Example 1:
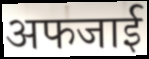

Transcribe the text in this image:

अफजाई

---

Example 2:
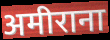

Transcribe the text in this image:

अमीराना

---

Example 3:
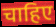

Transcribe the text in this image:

चाहिए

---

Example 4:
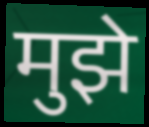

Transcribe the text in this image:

मुझे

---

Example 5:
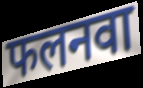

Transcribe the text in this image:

फलनवा